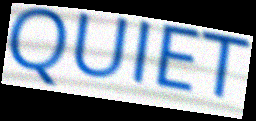
QUIET